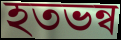
হতভন্ব